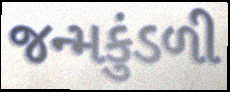
જન્મકુંડળી